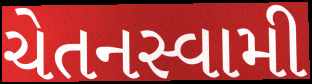
ચેતનસ્વામી